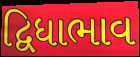
દ્વિધાભાવ